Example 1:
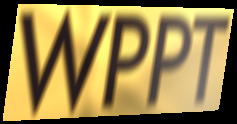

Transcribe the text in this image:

WPPT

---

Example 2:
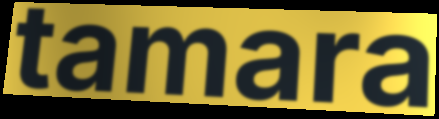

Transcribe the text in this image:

tamara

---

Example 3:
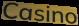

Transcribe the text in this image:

Casino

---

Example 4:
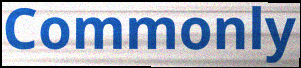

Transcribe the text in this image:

Commonly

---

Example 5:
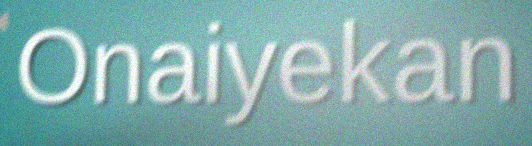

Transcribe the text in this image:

Onaiyekan